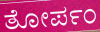
ತೋರ್ಪಂ